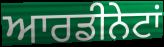
ਆਰਡੀਨੇਟਾਂ